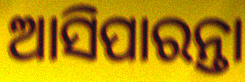
ଆସିପାରନ୍ତା